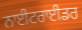
ਨਾਈਟਰਾਈਡਰ